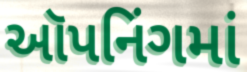
ઑપનિંગમાં